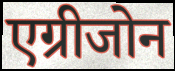
एग्रीजोन